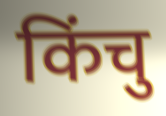
किंचु